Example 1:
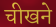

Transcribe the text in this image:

चीखने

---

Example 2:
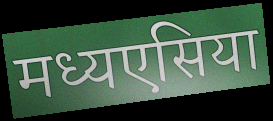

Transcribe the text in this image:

मध्यएसिया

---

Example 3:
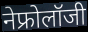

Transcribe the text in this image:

नेफ्रोलॉजी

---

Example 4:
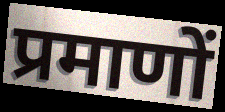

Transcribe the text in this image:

प्रमाणों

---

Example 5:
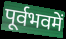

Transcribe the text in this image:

पूर्वभवमें